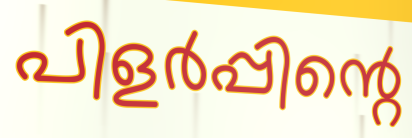
പിളർപ്പിന്റെ